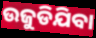
ଉଜୁଡିଯିବା